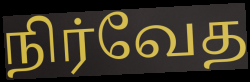
நிர்வேத